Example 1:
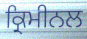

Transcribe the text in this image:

ਕ੍ਰਿਮੀਨਲ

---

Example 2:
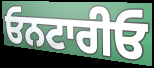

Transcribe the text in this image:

ਓਨਟਾਰੀਓ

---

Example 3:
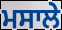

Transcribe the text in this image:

ਮਸਾਲੇ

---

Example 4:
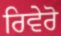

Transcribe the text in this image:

ਰਿਵੇਰੋ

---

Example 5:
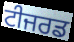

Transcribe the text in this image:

ਟੀਜਰਡ